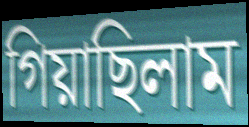
গিয়াছিলাম